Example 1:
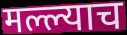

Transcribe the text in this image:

मल्ल्याच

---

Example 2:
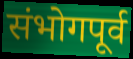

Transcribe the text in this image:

संभोगपूर्व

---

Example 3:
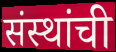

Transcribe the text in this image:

संस्थांची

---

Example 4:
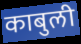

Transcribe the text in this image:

काबुली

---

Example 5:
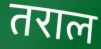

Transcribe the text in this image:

तराल